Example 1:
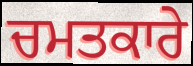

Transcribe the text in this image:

ਚਮਤਕਾਰੇ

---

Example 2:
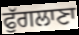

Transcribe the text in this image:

ਫੁੱਗਲਾਣਾ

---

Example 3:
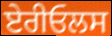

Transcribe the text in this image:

ਏਰੀਓਲਸ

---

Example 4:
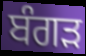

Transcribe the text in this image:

ਬੰਗੜ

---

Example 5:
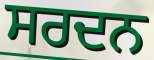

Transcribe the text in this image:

ਸਰਦਨ